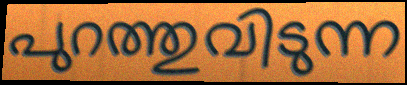
പുറത്തുവിടുന്ന